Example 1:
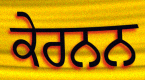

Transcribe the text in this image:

ਕੇਰਨਨ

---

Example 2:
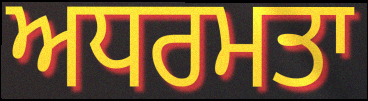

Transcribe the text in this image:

ਅਧਰਮਤਾ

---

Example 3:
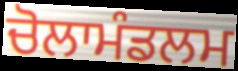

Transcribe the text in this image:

ਚੋਲਾਮੰਡਲਮ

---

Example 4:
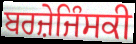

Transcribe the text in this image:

ਬਰਜ਼ੇਜਿੰਸਕੀ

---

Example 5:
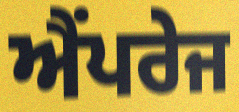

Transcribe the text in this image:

ਐਂਪਰੇਜ